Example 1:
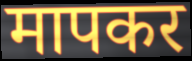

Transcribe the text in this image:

मापकर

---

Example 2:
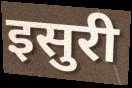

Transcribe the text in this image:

इसुरी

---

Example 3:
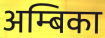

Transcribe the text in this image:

अम्बिका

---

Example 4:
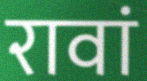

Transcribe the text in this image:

रावां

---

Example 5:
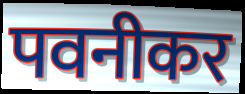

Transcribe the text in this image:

पवनीकर